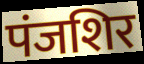
पंजशिर